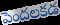
పెందలకడ